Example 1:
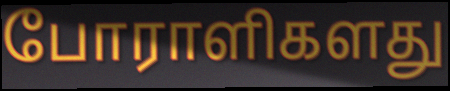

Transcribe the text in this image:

போராளிகளது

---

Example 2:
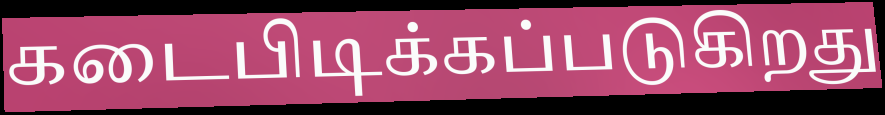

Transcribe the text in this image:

கடைபிடிக்கப்படுகிறது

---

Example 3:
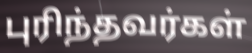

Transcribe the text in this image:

புரிந்தவர்கள்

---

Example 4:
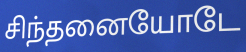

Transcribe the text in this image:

சிந்தனையோடே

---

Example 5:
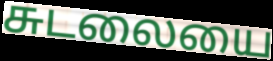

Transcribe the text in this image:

சுடலையை